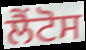
ਲੈਂਟੋਸ